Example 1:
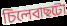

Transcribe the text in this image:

চিলেবাছটো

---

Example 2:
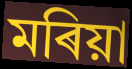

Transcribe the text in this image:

মৰিয়া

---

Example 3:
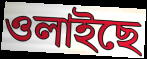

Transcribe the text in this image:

ওলাইছে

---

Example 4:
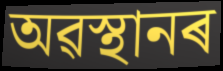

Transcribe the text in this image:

অৱস্থানৰ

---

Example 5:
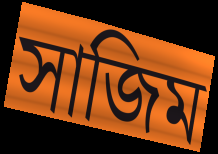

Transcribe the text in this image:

সাজিম